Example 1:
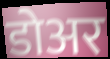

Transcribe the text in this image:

डोअर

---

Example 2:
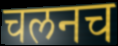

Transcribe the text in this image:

चलनच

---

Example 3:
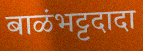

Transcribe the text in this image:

बाळंभट्टदादा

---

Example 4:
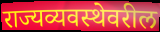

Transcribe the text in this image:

राज्यव्यवस्थेवरील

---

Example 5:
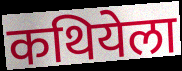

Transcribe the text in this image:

कथियेला